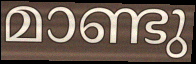
മാണ്ടു